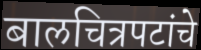
बालचित्रपटांचे